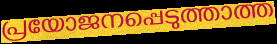
പ്രയോജനപ്പെടുത്താത്ത